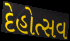
દેહોત્સવ